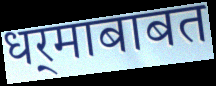
धर्माबाबत